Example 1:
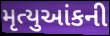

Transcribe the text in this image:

મૃત્યુઆંકની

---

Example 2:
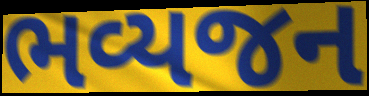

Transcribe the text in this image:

ભવ્યજન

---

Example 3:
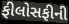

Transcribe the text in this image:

ફીલોસફીની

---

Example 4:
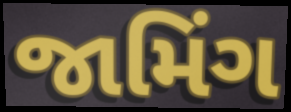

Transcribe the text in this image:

જામિંગ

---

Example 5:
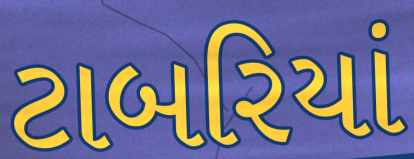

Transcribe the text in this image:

ટાબરિયાં